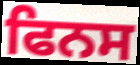
ਫਿਨਸ